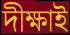
দীক্ষাই